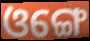
ଓଙ୍ଗେ